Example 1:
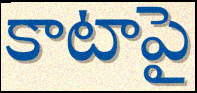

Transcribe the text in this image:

కాటాపై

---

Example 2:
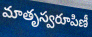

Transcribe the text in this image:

మాతృస్వరూపిణీ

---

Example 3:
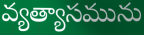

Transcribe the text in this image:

వ్యత్యాసమును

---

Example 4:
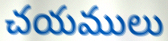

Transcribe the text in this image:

చయములు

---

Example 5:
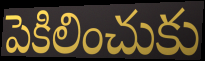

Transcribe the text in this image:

పెకిలించుకు